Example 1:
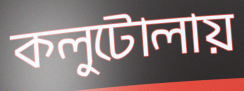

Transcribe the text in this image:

কলুটোলায়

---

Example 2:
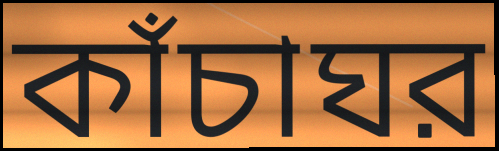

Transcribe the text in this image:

কাঁচাঘর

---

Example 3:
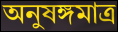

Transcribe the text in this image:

অনুষঙ্গমাত্র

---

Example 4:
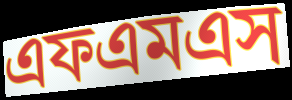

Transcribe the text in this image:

এফএমএস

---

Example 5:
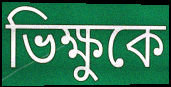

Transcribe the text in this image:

ভিক্ষুকে